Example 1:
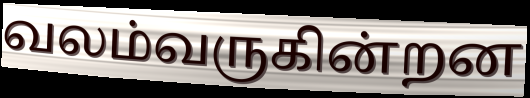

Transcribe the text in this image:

வலம்வருகின்றன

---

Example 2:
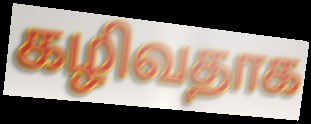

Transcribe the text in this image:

கழிவதாக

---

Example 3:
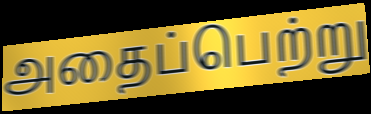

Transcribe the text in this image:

அதைப்பெற்று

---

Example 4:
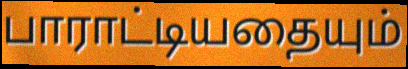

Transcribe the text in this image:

பாராட்டியதையும்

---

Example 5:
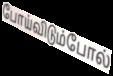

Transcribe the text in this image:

போய்விடும்போல்